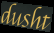
dusht